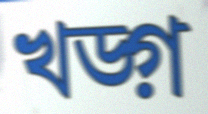
খড়্গ